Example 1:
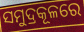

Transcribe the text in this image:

ସମୁଦ୍ରକୂଳରେ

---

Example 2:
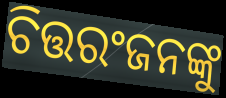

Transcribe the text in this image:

ଚିତ୍ତରଂଜନଙ୍କୁ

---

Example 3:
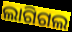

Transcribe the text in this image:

ଲାଗିଗଲ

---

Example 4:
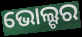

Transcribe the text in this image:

ଭୋଲ୍ଟର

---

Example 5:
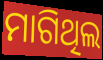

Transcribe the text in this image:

ମାଗିଥିଲ